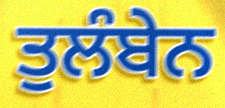
ਤੁਲੰਬੇਨ